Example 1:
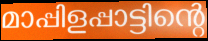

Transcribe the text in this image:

മാപ്പിളപ്പാട്ടിന്റെ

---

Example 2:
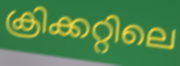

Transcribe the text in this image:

ക്രിക്കറ്റിലെ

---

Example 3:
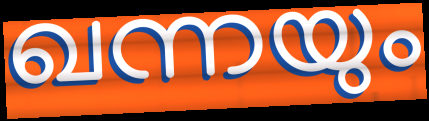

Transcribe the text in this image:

ഖന്നയും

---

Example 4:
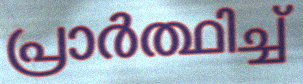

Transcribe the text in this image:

പ്രാർത്ഥിച്ച്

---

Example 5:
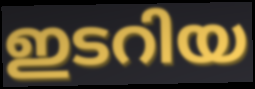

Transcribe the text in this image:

ഇടറിയ